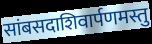
सांबसदाशिवार्पणमस्तु